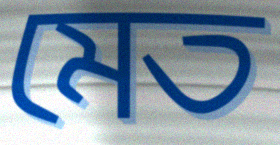
মেত